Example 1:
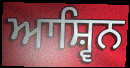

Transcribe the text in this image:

ਆਸ਼੍ਵਿਨ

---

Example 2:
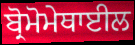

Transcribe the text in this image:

ਬ੍ਰੋਮੋਮੇਥਾਈਲ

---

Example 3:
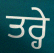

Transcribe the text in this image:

ਤਰ੍ਹੇ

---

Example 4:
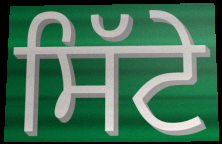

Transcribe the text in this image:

ਸਿੱਟੇ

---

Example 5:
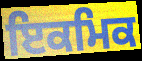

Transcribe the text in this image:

ਇਕਮਿਕ